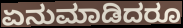
ಏನುಮಾಡಿದರೂ